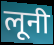
लूनी